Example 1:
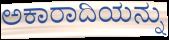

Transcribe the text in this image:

ಅಕಾರಾದಿಯನ್ನು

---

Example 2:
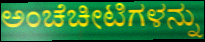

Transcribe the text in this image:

ಅಂಚೆಚೀಟಿಗಳನ್ನು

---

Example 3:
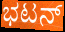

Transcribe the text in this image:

ಭಟನ್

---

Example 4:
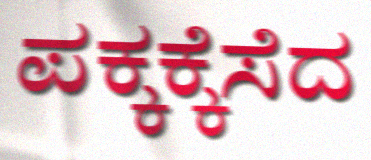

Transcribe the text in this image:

ಪಕ್ಕಕ್ಕೆಸೆದ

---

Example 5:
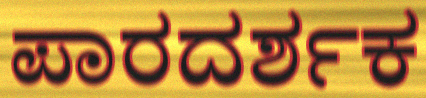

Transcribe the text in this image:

ಪಾರದರ್ಶಕ